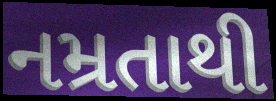
નમ્રતાથી